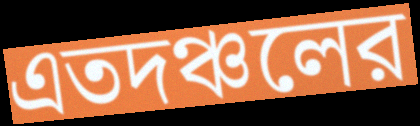
এতদঞ্চলের